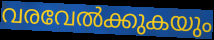
വരവേൽക്കുകയും